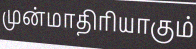
முன்மாதிரியாகும்